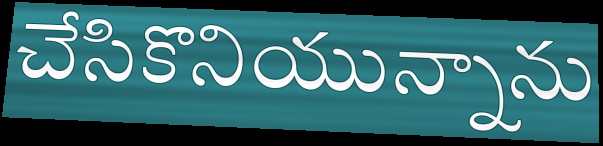
చేసికొనియున్నాను